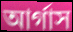
আর্গাস